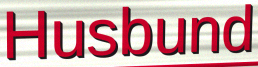
Husbund